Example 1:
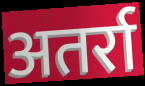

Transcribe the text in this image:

अतर्रा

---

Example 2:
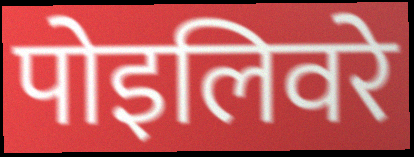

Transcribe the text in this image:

पोइलिवरे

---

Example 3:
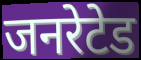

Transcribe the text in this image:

जनरेटेड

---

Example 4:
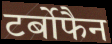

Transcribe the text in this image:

टर्बोफैन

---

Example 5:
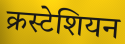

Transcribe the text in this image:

क्रस्टेशियन